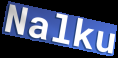
Nalku